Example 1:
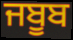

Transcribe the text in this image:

ਜਬੂਬ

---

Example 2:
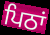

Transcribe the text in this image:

ਪਿਠਾਂ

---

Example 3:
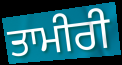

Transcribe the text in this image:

ਤਾਮੀਰੀ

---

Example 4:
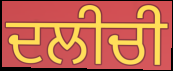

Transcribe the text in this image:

ਦਲੀਚੀ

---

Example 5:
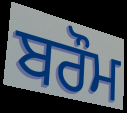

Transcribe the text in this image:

ਬਰੌਮ